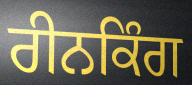
ਰੀਨਕਿੰਗ